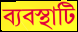
ব্যবস্থাটি